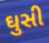
ઘુસી